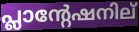
പ്ലാന്റേഷനില്